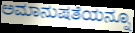
ಅಮಾನುಷತೆಯನ್ನೂ